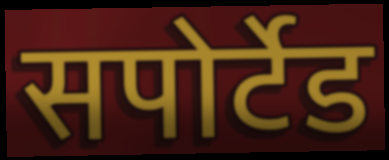
सपोर्टेड